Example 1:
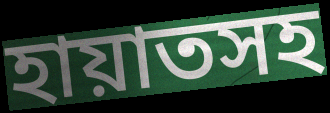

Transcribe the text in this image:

হায়াতসহ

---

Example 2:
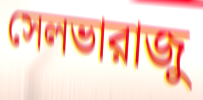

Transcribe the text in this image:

সেলভারাজু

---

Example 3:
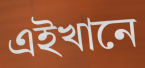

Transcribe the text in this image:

এইখানে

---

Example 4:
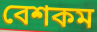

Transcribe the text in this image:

বেশকম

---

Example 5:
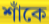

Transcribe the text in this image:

শাঁকে